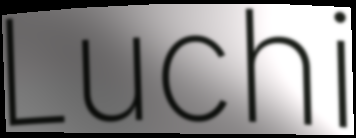
Luchi